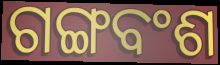
ଗଙ୍ଗବଂଶ